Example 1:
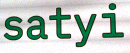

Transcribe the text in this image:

satyi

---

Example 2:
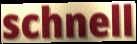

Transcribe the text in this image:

schnell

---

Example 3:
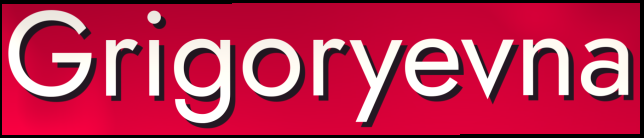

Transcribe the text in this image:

Grigoryevna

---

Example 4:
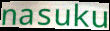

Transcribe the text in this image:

nasuku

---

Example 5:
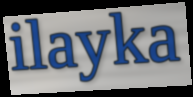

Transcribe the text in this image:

ilayka